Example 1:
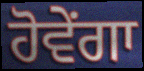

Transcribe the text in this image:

ਹੋਵੇਂਗਾ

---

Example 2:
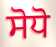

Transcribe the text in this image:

ਸੋਧੋ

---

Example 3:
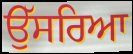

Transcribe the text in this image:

ਉੱਸਰਿਆ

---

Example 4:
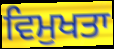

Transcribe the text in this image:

ਵਿਮੁਖਤਾ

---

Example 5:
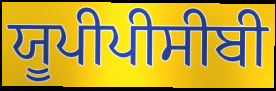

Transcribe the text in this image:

ਯੂਪੀਪੀਸੀਬੀ